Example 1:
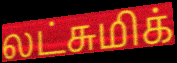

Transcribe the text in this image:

லட்சுமிக்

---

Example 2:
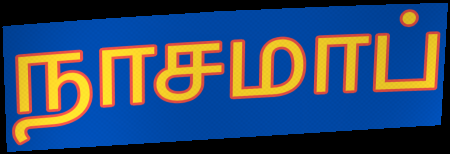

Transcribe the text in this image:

நாசமாப்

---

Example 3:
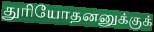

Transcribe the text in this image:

துரியோதனனுக்குக்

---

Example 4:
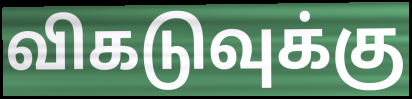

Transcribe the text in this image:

விகடுவுக்கு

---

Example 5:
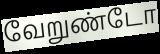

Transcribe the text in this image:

வேறுண்டோ